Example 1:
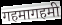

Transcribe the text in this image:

गहमागहमी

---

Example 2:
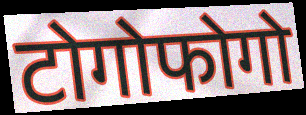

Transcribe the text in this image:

टोगोफोगो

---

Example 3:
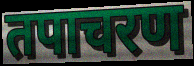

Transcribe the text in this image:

तपाचरण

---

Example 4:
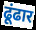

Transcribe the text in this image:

ढूंढार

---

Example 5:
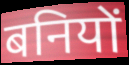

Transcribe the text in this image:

बनियों